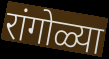
रांगोळ्या